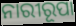
ନାରୀରୂପା